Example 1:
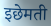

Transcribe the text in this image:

इछेमती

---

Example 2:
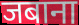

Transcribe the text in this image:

जबाना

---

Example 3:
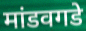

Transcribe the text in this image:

मांडवगडे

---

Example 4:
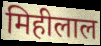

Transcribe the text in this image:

मिहीलाल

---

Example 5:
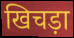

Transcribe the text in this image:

खिचड़ा